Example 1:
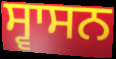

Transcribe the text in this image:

ਸ੍ਵਾਸਨ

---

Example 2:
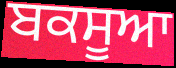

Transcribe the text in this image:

ਬਕਸੂਆ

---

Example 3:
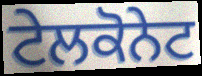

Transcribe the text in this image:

ਟੇਲਕੋਨੇਟ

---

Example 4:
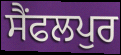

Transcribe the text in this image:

ਸੈਂਫਲਪੁਰ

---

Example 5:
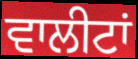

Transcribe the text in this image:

ਵਾਲੀਟਾਂ